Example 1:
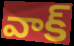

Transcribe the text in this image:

వాక్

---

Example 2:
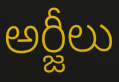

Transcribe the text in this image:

అర్జీలు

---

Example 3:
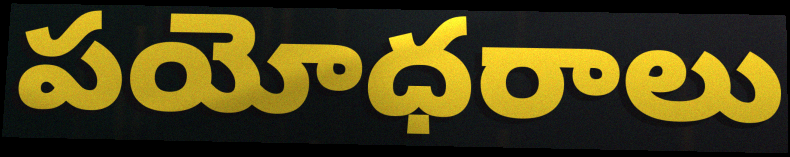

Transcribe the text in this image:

పయోధరాలు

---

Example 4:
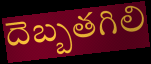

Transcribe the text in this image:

దెబ్బతగిలి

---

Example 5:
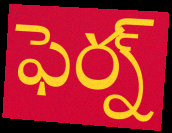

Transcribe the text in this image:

ఫెర్న్